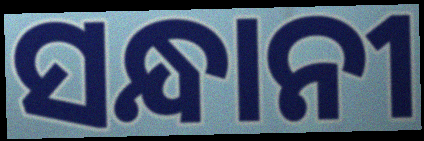
ସନ୍ଧାନୀ